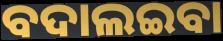
ବଦାଲଇବା